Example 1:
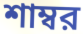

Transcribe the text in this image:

শাম্বর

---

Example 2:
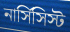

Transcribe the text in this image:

নার্সিসিস্ট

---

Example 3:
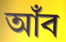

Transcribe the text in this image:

আঁব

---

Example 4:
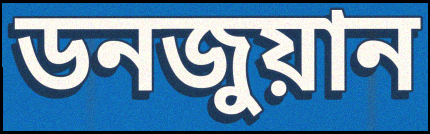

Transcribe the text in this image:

ডনজুয়ান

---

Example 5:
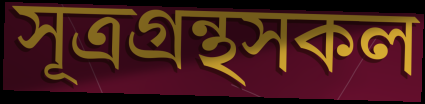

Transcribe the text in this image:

সূত্রগ্রন্থসকল